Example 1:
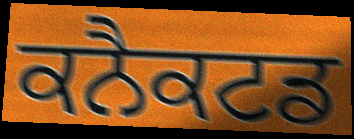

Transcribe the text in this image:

ਕਨੈਕਟਡ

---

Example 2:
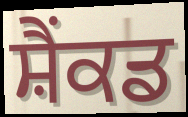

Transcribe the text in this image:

ਸ਼ੈਂਕਡ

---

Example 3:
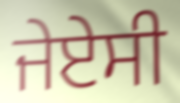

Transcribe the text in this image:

ਜੇਏਸੀ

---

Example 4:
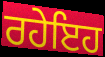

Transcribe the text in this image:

ਰਹੇਇਹ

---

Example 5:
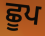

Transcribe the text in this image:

ਛੂਪ